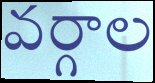
వర్గాల